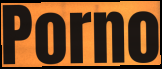
Porno